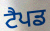
ਟੈਪਡ